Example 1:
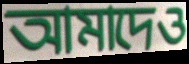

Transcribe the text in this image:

আমাদেও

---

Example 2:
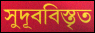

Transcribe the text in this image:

সুদূববিস্তৃত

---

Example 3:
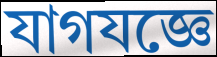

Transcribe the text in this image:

যাগযজ্ঞে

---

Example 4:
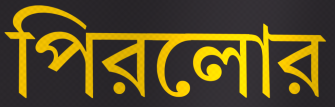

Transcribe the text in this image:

পিরলোর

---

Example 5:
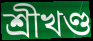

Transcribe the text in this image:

শ্রীখণ্ড